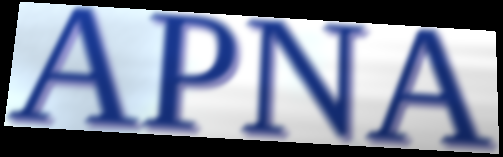
APNA